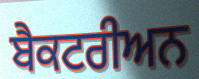
ਬੈਕਟਰੀਅਨ